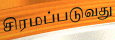
சிரமப்படுவது